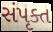
સંપૃક્ત